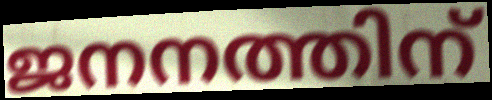
ജനനത്തിന്